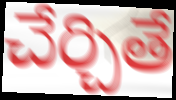
చేర్చితే